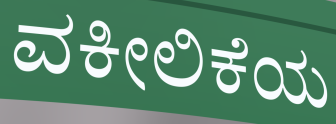
ವಕೀಲಿಕೆಯ